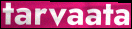
tarvaata